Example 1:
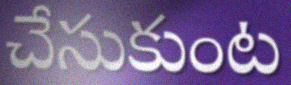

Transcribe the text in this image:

చేసుకుంట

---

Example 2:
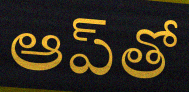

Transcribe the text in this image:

ఆప్‌తో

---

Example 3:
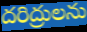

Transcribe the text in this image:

దరిద్రులను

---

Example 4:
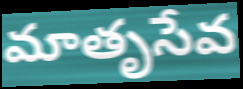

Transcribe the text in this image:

మాతృసేవ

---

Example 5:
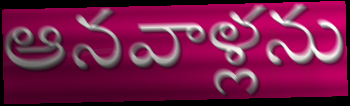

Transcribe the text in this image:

ఆనవాళ్లను